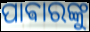
ପାଵାରଙ୍କୁ